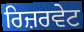
ਰਿਜ਼ਰਵੇਟ